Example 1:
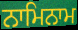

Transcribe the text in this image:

ਨਾਮਿਨਾਮ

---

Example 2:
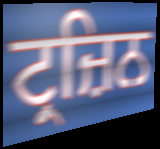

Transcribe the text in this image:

ਟ੍ਰਜ਼ਿਨ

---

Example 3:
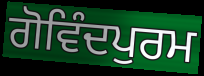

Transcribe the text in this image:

ਗੋਵਿੰਦਪੁਰਮ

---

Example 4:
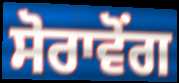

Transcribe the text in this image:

ਸੋਰਾਵੋਂਗ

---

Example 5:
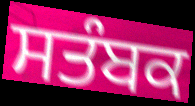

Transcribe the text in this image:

ਸਤੰਬਕ